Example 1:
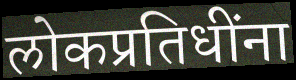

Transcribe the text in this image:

लोकप्रतिधींना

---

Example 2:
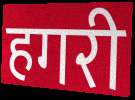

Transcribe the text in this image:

हगरी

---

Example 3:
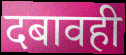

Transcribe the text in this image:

दबावही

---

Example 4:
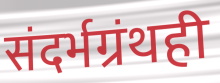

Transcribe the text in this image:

संदर्भग्रंथही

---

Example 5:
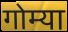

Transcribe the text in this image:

गोम्या